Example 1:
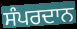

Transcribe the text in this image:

ਸੰਪਰਦਾਨ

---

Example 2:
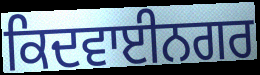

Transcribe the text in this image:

ਕਿਦਵਾਈਨਗਰ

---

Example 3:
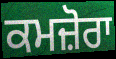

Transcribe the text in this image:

ਕਮਜ਼ੋਰਾ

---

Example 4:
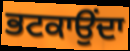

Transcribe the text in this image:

ਭਟਕਾਉਂਦਾ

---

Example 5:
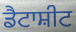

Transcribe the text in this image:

ਡੈਟਾਸ਼ੀਟ